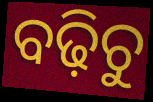
ବଢ଼ିଚୁ